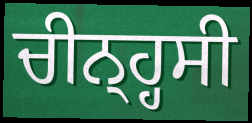
ਚੀਨ੍ਹ੍ਹਸੀ